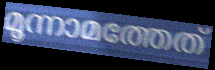
മൂന്നാമത്തേത്